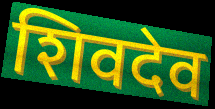
शिवदेव